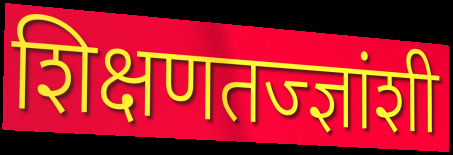
शिक्षणतज्ज्ञांशी